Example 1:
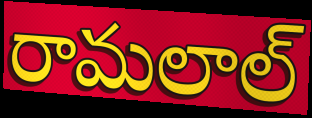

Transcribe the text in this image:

రామలాల్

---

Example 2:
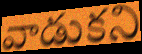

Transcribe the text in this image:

వాడుకని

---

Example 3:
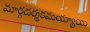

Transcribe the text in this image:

మార్గదర్శకమయ్యాయి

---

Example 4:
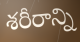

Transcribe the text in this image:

శరీరాన్ని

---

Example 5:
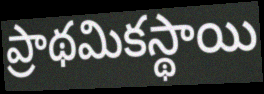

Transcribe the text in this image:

ప్రాథమికస్థాయి